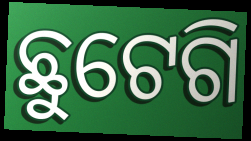
ଛୁଟେଗି